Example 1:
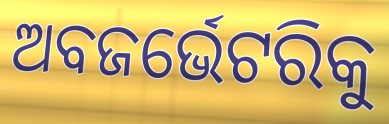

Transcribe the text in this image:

ଅବଜର୍ଭେଟରିକୁ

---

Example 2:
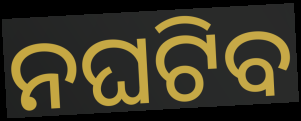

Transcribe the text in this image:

ନଘଟିବ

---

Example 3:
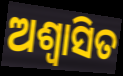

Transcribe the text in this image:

ଅଶ୍ୱାସିତ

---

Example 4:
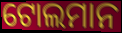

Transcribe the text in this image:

ଟୋଲମାନ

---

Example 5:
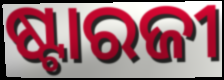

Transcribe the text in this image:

ଷ୍ଟାରଜୀ